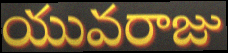
యువరాజు